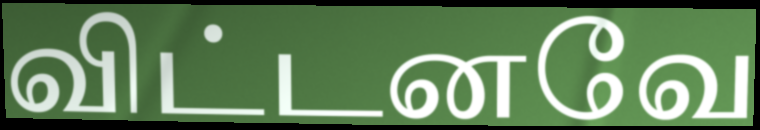
விட்டனவே